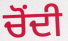
ਚੋੰਦੀ